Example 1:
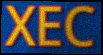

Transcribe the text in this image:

XEC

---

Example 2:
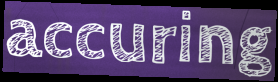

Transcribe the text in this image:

accuring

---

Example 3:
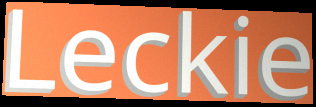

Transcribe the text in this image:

Leckie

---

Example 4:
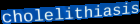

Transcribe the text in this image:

cholelithiasis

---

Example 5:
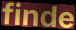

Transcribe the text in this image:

finde